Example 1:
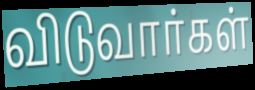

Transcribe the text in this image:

விடுவார்கள்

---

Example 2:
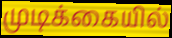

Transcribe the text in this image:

முடிக்கையில்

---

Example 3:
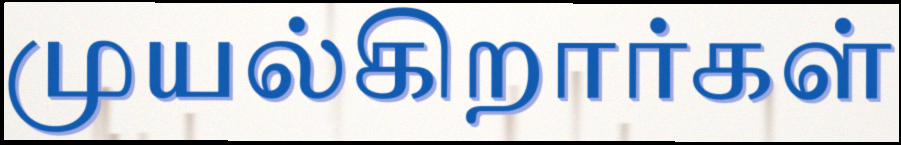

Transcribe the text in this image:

முயல்கிறார்கள்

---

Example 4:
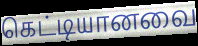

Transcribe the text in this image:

கெட்டியானவை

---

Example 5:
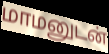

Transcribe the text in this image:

மாமனுடன்